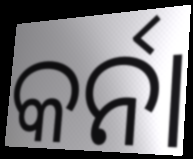
କର୍ନା